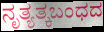
ನೃತ್ಯತ್ಕಬಂಧದ